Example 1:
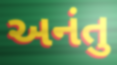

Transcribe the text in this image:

અનંતુ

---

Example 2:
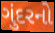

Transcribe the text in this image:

ગુંદરનો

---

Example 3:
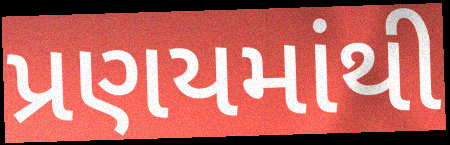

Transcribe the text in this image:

પ્રણયમાંથી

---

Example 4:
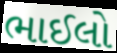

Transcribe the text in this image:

ભાઈલો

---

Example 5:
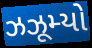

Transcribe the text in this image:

ઝઝૂમ્યો